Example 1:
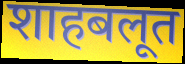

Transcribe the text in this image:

शाहबलूत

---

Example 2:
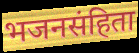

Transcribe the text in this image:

भजनसंहिता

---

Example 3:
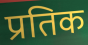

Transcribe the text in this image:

प्रतिक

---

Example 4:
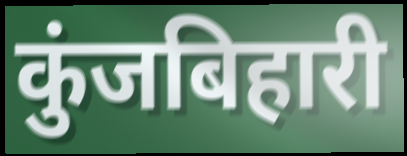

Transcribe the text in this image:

कुंजबिहारी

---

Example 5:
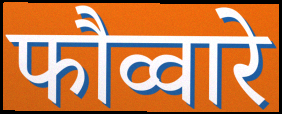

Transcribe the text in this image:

फौव्वारे